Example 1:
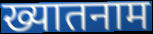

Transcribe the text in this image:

ख्यातनाम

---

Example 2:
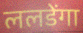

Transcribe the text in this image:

ललडेंगा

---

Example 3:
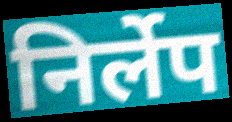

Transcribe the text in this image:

निर्लेप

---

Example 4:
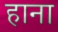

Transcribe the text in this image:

हाना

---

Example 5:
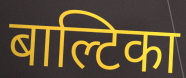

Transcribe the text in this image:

बाल्टिका